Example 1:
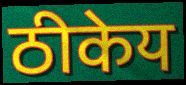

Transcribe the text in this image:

ठीकेय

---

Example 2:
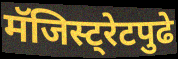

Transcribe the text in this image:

मॅजिस्ट्रेटपुढे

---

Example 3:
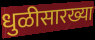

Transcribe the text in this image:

धुळीसारख्या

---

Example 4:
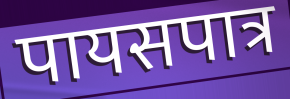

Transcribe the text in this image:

पायसपात्र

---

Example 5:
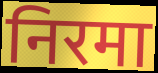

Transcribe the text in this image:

निरमा